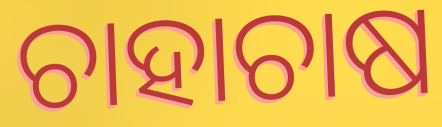
ଚାହାଚାଷ